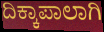
ದಿಕ್ಕಾಪಾಲಾಗಿ